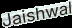
Jaishwal